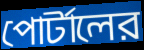
পোর্টালের